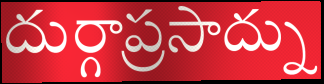
దుర్గాప్రసాద్ను